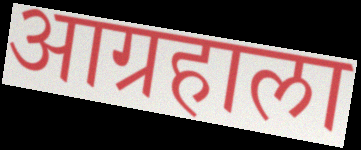
आग्रहाला